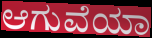
ಆಗುವೆಯಾ